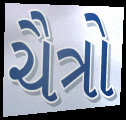
ચૈત્રો